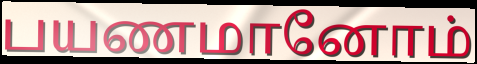
பயணமானோம்